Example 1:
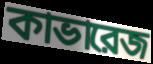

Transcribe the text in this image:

কাভারেজ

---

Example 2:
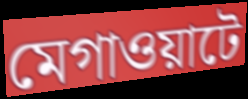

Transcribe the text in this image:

মেগাওয়াটে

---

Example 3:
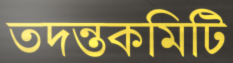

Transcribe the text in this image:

তদন্তকমিটি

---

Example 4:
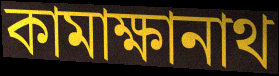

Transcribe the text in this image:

কামাক্ষানাথ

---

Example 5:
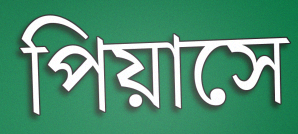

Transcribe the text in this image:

পিয়াসে